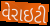
વેરાઇટી